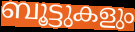
ബൂട്ടുകളും